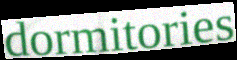
dormitories